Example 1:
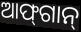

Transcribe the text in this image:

ଆଫ୍‌ଗାନ୍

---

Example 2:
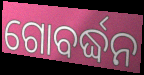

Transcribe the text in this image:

ଗୋବର୍ଦ୍ଧନ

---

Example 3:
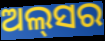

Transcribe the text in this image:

ଅଲ୍‌ସର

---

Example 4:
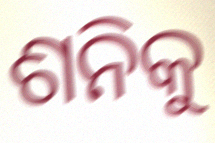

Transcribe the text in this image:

ଶନିକୁ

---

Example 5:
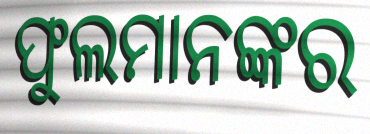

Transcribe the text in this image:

ଫୁଲମାନଙ୍କର